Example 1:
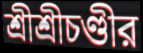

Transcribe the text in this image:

শ্রীশ্রীচণ্ডীর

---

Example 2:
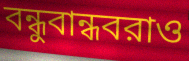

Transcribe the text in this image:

বন্ধুবান্ধবরাও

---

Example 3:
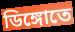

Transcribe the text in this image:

ডিঙ্গোতে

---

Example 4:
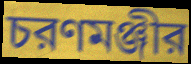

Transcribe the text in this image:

চরণমঞ্জীর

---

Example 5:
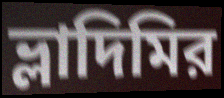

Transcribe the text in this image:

ভ্লাদিমির